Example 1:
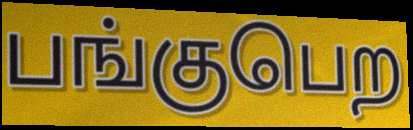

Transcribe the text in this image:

பங்குபெற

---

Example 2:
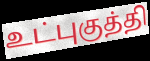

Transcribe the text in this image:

உட்புகுத்தி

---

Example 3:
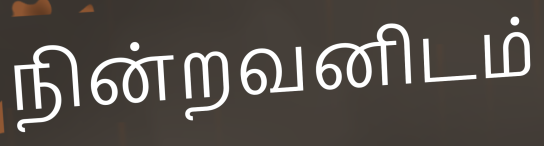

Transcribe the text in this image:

நின்றவனிடம்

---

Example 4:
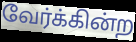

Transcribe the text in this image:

வேர்க்கின்ற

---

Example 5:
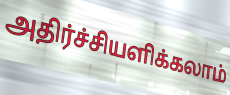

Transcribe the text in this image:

அதிர்ச்சியளிக்கலாம்